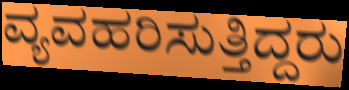
ವ್ಯವಹರಿಸುತ್ತಿದ್ದರು